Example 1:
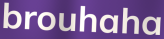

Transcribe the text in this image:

brouhaha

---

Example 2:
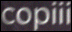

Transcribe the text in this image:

copiii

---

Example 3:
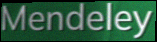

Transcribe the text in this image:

Mendeley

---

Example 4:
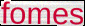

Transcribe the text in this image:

fomes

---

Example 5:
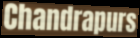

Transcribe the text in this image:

Chandrapurs